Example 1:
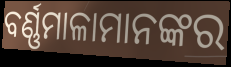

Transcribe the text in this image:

ବର୍ଣ୍ଣମାଳାମାନଙ୍କର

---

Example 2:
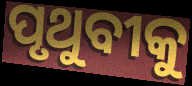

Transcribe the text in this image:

ପୃଥୁବୀକୁ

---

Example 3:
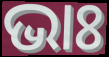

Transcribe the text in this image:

ଭାଃ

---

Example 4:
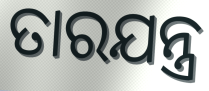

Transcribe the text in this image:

ତାରଯନ୍ତ୍ର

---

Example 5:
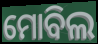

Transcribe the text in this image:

ମୋବିଲ